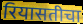
रियासतीचा